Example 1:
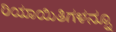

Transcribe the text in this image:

ರಿಯಾಯಿತಿಗಳನ್ನೂ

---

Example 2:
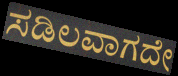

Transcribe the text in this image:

ಸಡಿಲವಾಗದೇ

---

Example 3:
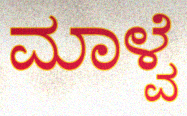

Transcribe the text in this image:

ಮಾಳ್ವೆ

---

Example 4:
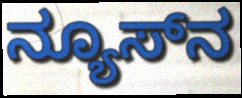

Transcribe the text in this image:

ನ್ಯೂಸ್‌ನ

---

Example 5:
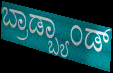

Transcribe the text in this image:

ಬ್ರಾಡ್ಬ್ಯಾಂಡ್